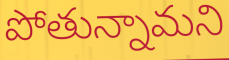
పోతున్నామని